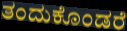
ತಂದುಕೊಂಡರೆ